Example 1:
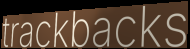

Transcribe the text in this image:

trackbacks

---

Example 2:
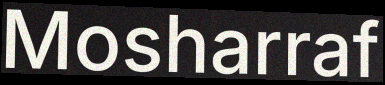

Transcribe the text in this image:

Mosharraf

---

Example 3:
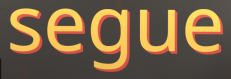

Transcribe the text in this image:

segue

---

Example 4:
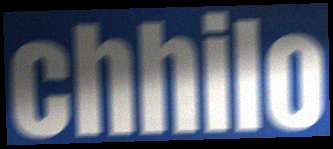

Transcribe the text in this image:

chhilo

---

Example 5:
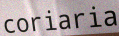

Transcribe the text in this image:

coriaria